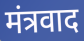
मंत्रवाद